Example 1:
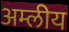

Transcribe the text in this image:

अम्‍लीय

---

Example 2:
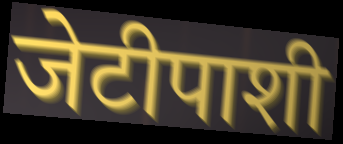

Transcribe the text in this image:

जेटीपाशी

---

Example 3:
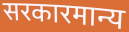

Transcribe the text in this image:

सरकारमान्य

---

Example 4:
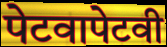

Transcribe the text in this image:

पेटवापेटवी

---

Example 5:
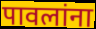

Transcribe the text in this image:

पावलांना